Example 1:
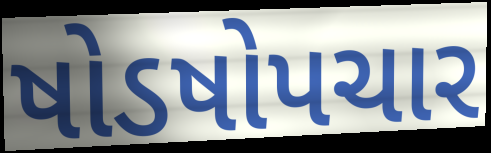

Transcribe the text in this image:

ષોડષોપચાર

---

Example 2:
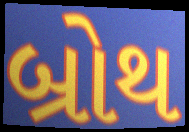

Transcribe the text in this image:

બ્રોથ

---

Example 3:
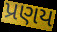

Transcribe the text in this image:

પ્રણય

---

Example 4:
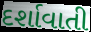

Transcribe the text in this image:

દર્શાવાતી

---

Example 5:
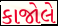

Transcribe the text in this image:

કાજોલે